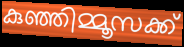
കുഞ്ഞിമ്മൂസക്ക്